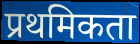
प्रथमिकता